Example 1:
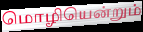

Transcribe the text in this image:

மொழியென்றும்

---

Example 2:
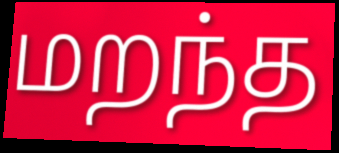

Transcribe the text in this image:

மறந்த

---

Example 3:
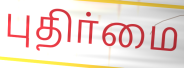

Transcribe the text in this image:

புதிர்மை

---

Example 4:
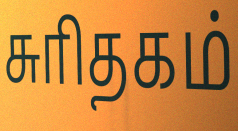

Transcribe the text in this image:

சுரிதகம்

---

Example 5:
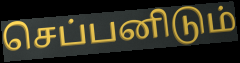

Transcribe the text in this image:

செப்பனிடும்